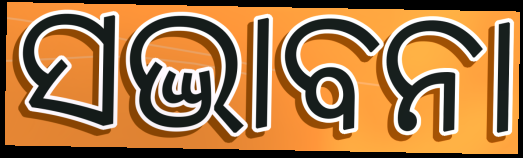
ସଦ୍ଭାବନା